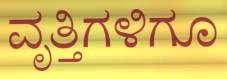
ವೃತ್ತಿಗಳಿಗೂ